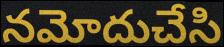
నమోదుచేసి